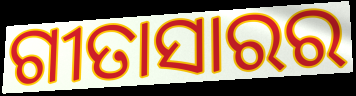
ଗୀତାସାରର